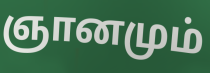
ஞானமும்